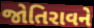
જોતિરાવને